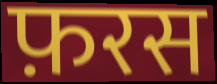
फ़रस